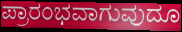
ಪ್ರಾರಂಭವಾಗುವುದೂ